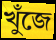
খুঁজে